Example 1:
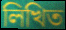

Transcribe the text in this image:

লিখিত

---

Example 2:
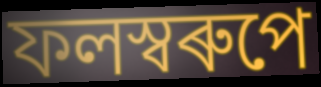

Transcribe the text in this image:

ফলস্বৰুপে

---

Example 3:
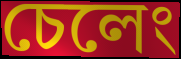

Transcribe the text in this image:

চেলেং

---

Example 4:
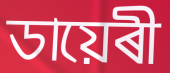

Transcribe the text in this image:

ডায়েৰী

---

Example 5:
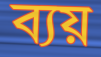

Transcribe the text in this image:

ব্যয়